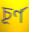
চূর্ণ